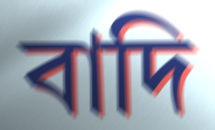
বাদি